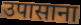
उपासाना